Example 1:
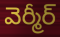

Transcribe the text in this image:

వెర్మీర్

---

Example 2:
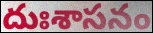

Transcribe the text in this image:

దుఃశాసనం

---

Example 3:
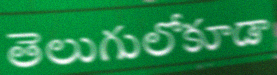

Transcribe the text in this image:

తెలుగులోకూడా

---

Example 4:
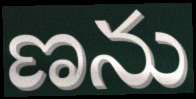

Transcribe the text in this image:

ణను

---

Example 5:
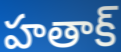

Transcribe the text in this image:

హతాక్